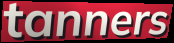
tanners